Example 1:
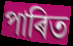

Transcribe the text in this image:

পাৰিত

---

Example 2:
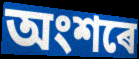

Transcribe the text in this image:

অংশৰে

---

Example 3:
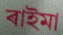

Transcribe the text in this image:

ৰাইমা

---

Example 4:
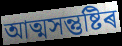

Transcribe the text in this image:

আত্মসন্তুষ্টিৰ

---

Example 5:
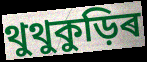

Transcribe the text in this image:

থুথুকুড়িৰ